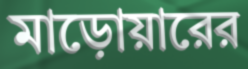
মাড়োয়ারের